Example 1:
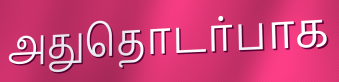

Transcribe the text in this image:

அதுதொடர்பாக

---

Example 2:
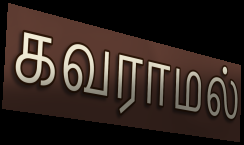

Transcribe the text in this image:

கவராமல்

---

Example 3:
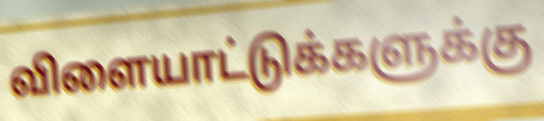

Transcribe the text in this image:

விளையாட்டுக்களுக்கு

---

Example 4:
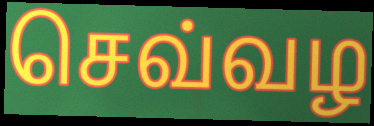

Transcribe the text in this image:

செவ்வழ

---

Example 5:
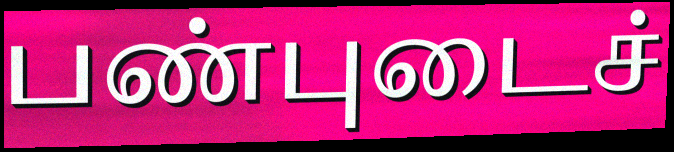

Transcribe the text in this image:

பண்புடைச்